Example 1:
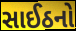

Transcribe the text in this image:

સાઈઠનો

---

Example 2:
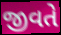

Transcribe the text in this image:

જીવતે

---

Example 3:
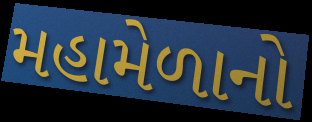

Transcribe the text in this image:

મહામેળાનો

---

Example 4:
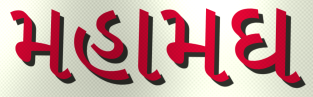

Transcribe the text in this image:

મહામઘ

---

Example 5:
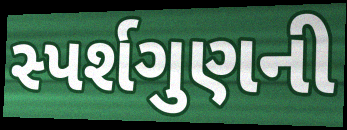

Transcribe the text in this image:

સ્પર્શગુણની